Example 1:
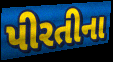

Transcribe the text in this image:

પીરતીના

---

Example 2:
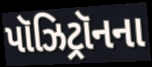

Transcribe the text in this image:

પૉઝિટ્રૉનના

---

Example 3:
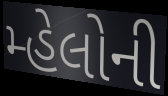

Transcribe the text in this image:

મ્હેલોની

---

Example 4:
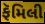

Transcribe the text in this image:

ફૅમિલી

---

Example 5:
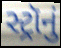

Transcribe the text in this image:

સ્ટ્રૉનું